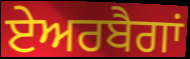
ਏਅਰਬੈਗਾਂ